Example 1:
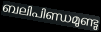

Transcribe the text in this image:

ബലിപിണ്ഡമുണ്ടു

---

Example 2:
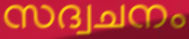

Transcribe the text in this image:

സദ്വചനം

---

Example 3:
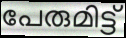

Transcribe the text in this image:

പേരുമിട്ട്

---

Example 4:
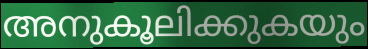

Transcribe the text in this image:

അനുകൂലിക്കുകയും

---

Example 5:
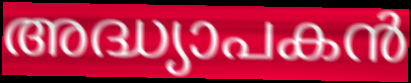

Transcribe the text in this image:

അദ്ധ്യാപകൻ